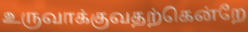
உருவாக்குவதற்கென்றே